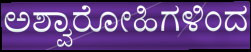
ಅಶ್ವಾರೋಹಿಗಳಿಂದ